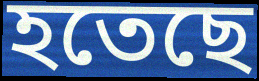
হতেছে